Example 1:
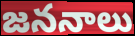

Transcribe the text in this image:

జననాలు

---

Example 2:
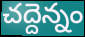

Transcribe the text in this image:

చద్దెన్నం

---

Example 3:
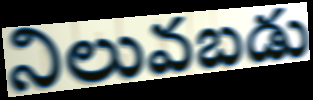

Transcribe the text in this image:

నిలువబడు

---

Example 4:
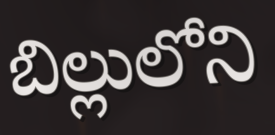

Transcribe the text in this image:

బిల్లులోని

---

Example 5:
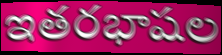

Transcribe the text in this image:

ఇతరభాషల